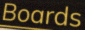
Boards